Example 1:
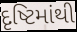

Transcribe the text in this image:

દૃષ્ટિમાંથી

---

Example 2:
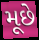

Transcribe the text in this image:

મૂછે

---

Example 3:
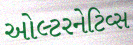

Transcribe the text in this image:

ઓલ્ટરનેટિવ્સ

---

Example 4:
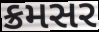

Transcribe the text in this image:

ક્રમસર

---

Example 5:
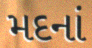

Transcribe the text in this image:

મદનાં